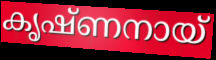
കൃഷ്ണനായ്